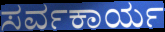
ಸರ್ವಕಾರ್ಯ